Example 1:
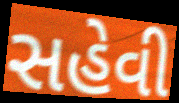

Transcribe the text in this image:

સહેવી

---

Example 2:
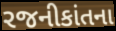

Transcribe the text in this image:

રજનીકાંતના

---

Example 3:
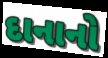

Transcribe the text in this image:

દાનાનો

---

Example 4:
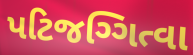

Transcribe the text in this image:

પટિજગ્ગિત્વા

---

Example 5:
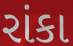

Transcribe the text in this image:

રાંકા